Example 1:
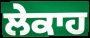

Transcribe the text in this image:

ਲੇਕਾਹ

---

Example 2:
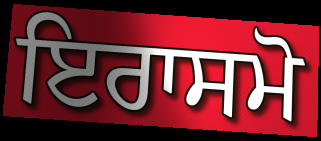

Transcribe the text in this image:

ਇਰਾਸਮੋ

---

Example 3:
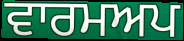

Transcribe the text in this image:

ਵਾਰਮਅਪ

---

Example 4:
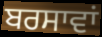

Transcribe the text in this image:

ਬਰਸਾਵਾਂ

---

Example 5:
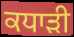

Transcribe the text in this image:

ਕਧਾੜੀ